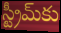
స్ట్రీమ్‌కు